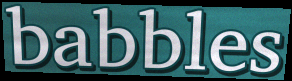
babbles